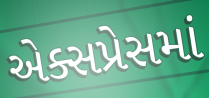
એક્સપ્રેસમાં